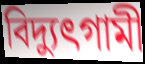
বিদ্যুৎগামী